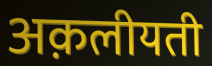
अक़लीयती